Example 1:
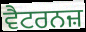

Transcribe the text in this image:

ਵੈਟਰਨਜ਼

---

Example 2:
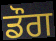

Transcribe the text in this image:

ਡੌਗ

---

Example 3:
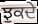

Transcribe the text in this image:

ਝੁਕਦੇ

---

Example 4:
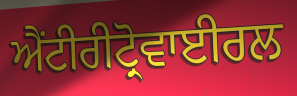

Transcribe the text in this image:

ਐਂਟੀਰੀਟ੍ਰੋਵਾਈਰਲ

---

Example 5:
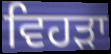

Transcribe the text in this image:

ਵਿਹੜਾ